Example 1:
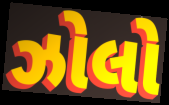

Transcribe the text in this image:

ઝોલો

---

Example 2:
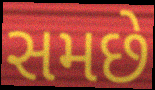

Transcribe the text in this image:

સમછે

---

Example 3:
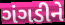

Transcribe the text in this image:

ગંગડીને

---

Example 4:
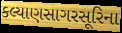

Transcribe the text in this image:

કલ્યાણસાગરસૂરિના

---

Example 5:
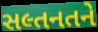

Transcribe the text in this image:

સલ્તનતને